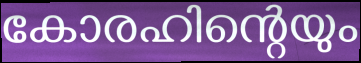
കോരഹിന്റെയും